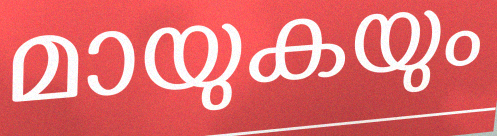
മായുകയും